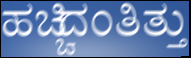
ಹಚ್ಚಿದಂತಿತ್ತು